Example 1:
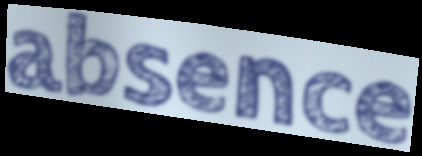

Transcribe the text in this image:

absence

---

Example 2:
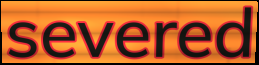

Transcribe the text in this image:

severed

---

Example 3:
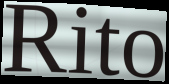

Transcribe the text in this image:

Rito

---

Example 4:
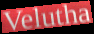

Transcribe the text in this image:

Velutha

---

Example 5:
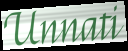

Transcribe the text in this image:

Unnati